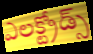
ఎలక్ట్రోడ్స్